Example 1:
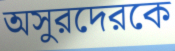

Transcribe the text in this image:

অসুরদেরকে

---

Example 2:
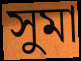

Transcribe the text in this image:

সুমা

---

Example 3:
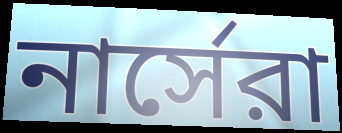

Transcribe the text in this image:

নার্সেরা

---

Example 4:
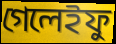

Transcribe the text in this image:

গেলেইফু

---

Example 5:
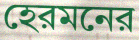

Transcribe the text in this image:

হেরমনের